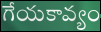
గేయకావ్యం